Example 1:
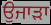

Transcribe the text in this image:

ਉਜਾੜਾ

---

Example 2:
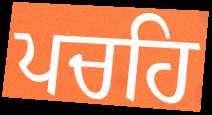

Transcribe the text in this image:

ਪਚਹਿ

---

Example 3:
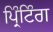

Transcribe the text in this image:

ਪ੍ਰਿੰਟਿੰਗ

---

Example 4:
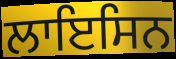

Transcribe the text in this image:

ਲਾਇਸਿਨ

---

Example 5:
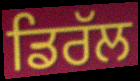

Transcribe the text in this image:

ਡਿਰੱਲ